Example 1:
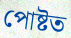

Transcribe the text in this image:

পোষ্টত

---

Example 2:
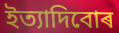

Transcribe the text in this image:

ইত্যাদিবোৰ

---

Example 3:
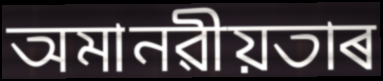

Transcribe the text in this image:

অমানৱীয়তাৰ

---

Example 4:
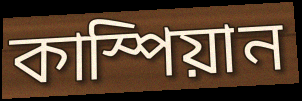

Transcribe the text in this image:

কাস্পিয়ান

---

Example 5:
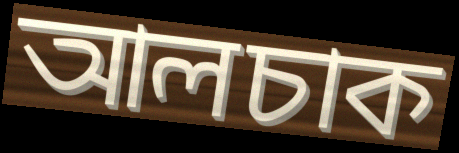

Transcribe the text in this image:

আলচাক